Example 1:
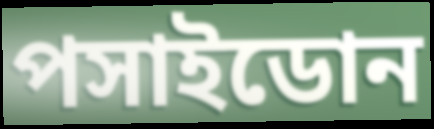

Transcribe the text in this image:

পসাইডোন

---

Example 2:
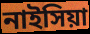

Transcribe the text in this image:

নাইসিয়া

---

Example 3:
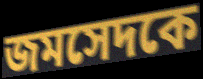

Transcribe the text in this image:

জমসেদকে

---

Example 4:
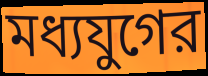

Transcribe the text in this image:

মধ্যযুগের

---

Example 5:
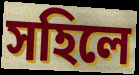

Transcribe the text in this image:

সহিলে